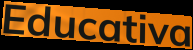
Educativa